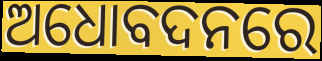
ଅଧୋବଦନରେ